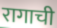
रागाची